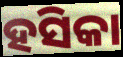
ହସିକା